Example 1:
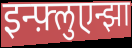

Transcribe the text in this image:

इन्फ़्लुएन्झा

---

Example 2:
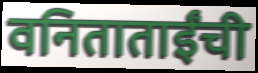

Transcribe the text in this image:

वनिताताईंची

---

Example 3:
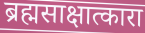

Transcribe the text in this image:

ब्रह्मसाक्षात्कारा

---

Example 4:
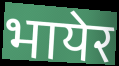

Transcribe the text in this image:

भायेर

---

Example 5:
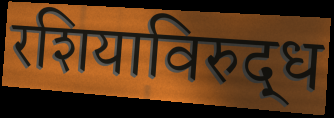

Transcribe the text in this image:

रशियाविरुद्ध